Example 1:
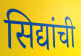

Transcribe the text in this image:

सिद्यांची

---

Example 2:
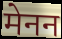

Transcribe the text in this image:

मेनन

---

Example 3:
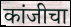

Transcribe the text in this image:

कांजीचा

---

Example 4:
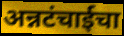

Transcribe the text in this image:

अन्नटंचाईचा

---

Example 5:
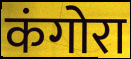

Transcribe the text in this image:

कंगोरा